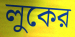
লুকের